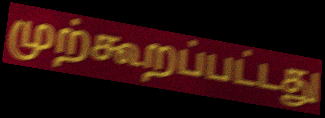
முற்கூறப்பட்டது